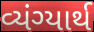
વ્યંગ્યાર્થ